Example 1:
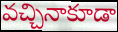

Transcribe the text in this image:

వచ్చినాకూడా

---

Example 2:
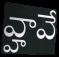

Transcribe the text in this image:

వ్హావే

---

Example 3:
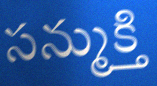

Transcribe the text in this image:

సన్ముక్తి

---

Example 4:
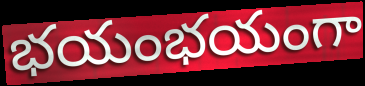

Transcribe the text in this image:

భయంభయంగా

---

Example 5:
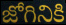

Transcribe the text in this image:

జోగినికి